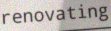
renovating